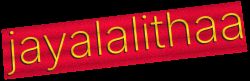
jayalalithaa